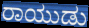
ರಾಯುಡು